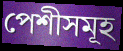
পেশীসমূহ